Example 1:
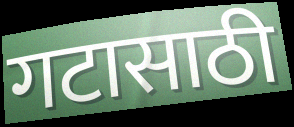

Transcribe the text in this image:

गटासाठी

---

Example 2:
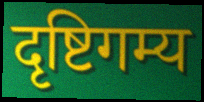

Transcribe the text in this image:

दृष्टिगम्य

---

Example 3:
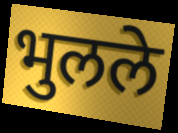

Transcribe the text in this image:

भुलले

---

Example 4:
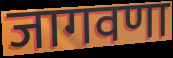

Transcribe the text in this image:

जागवणा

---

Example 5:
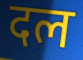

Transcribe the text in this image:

दल